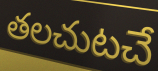
తలచుటచే